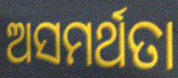
ଅସମର୍ଥତା